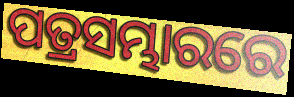
ପତ୍ରସମ୍ଭାରରେ